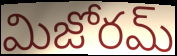
మిజోరమ్